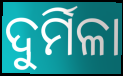
ଦୁର୍ମିଳା